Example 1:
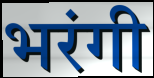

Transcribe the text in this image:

भरंगी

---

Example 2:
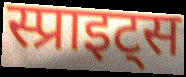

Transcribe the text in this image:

स्प्राइट्स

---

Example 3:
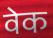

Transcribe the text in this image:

वेक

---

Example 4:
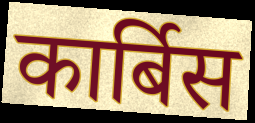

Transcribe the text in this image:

कार्बिस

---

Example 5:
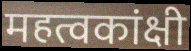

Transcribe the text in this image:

महत्वकांक्षी